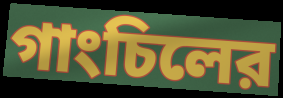
গাংচিলের